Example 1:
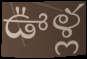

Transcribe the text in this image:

ఊళ్ల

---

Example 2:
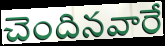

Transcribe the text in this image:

చెందినవారే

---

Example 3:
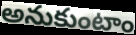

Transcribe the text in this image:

అనుకుంటాం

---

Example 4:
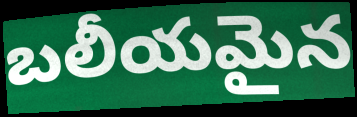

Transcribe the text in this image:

బలీయమైన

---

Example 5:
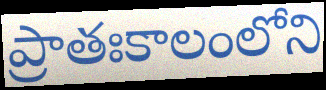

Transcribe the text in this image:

ప్రాతఃకాలంలోని